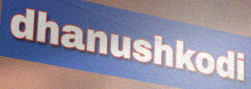
dhanushkodi